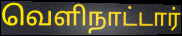
வெளிநாட்டார்